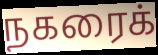
நகரைக்